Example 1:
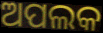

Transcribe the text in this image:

ଅପଲକ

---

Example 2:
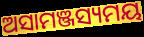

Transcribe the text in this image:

ଅସାମଞ୍ଜସ୍ୟମୟ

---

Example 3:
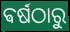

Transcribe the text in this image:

ଵର୍ଷଠାରୁ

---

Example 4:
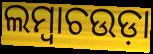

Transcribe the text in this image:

ଲମ୍ବାଚଉଡ଼ା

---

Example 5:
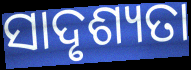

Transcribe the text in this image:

ସାଦୃଶ୍ୟତା